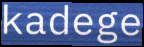
kadege